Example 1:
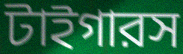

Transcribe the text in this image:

টাইগারস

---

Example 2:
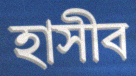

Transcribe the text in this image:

হাসীব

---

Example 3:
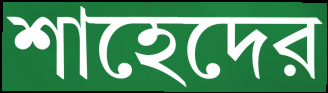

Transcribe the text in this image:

শাহেদের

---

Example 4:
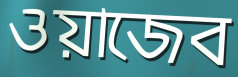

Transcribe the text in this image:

ওয়াজেব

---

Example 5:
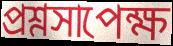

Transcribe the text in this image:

প্রশ্নসাপেক্ষ